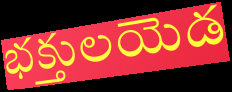
భక్తులయెడ